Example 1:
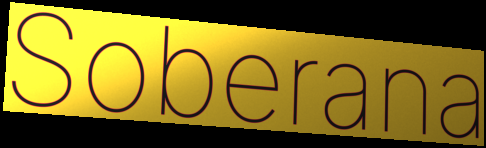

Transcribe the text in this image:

Soberana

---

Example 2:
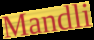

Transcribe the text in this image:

Mandli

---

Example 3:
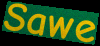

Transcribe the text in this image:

Sawe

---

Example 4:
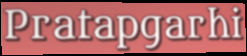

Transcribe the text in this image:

Pratapgarhi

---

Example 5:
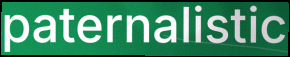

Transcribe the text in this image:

paternalistic